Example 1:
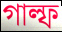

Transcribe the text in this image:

গাল্ফ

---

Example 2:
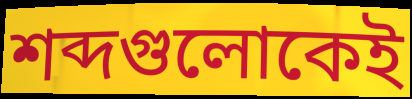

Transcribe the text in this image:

শব্দগুলোকেই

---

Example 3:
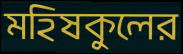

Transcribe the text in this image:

মহিষকুলের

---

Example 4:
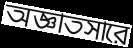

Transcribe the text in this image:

অজ্ঞাতসারে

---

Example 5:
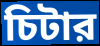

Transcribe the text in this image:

চিটার